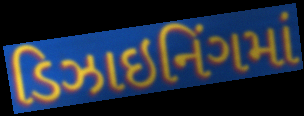
ડિઝાઇનિંગમાં